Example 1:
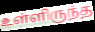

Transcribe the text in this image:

உள்ளிருந்த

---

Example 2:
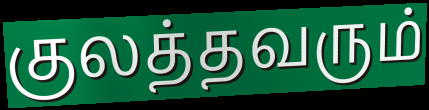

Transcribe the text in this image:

குலத்தவரும்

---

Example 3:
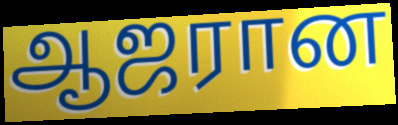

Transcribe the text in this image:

ஆஜரான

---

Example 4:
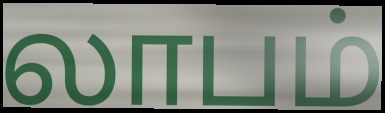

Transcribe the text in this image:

லாபம்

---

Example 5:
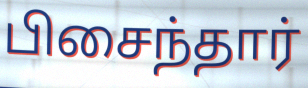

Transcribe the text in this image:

பிசைந்தார்